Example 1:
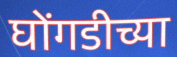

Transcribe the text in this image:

घोंगडीच्या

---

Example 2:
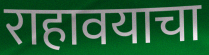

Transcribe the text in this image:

राहावयाचा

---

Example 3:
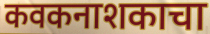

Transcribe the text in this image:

कवकनाशकाचा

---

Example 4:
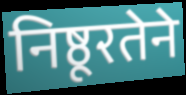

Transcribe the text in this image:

निष्ठूरतेने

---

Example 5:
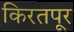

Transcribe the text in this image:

किरतपूर